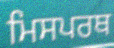
ਮਿਸਪਰਥ